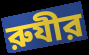
রুযীর